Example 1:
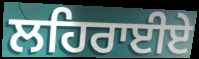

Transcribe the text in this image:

ਲਹਿਰਾਈਏ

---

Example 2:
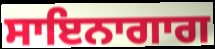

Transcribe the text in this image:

ਸਾਇਨਾਗਾਗ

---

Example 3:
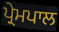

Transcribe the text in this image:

ਪ੍ਰੇਮਪਾਲ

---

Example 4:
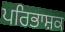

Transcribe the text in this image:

ਪਰਿਭਾਸ਼ਕ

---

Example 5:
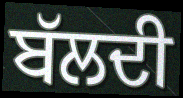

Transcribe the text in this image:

ਬੱਲਦੀ